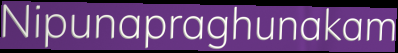
Nipunapraghunakam